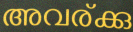
അവര്ക്കു